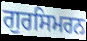
ਗੁਰਸਿਮਰਨ